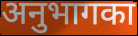
अनुभागका